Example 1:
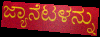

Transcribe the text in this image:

ಜ್ಯಾನೆಟಳನ್ನು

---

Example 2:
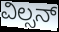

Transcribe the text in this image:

ವಿಲ್ಸನ್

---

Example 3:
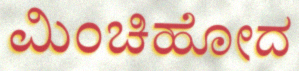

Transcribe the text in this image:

ಮಿಂಚಿಹೋದ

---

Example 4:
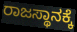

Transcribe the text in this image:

ರಾಜಸ್ಥಾನಕ್ಕೆ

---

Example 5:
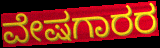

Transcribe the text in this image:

ವೇಷಗಾರರ